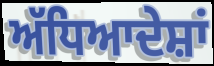
ਅੱਧਿਆਦੇਸ਼ਾਂ